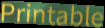
Printable